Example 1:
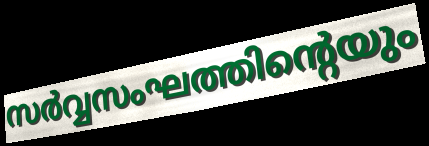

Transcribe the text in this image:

സർവ്വസംഘത്തിന്റെയും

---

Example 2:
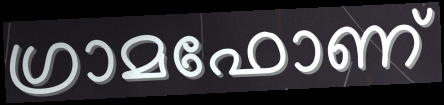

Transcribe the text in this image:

ഗ്രാമഫോണ്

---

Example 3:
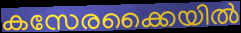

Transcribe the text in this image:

കസേരക്കൈയിൽ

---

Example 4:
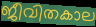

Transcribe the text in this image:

ജീവിതകാല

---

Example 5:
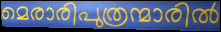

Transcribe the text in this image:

മെരാരിപുത്രന്മാരിൽ